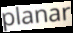
planar